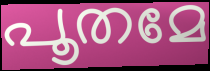
പൂതമേ